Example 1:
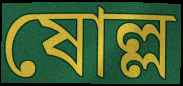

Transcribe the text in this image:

ষোল্ল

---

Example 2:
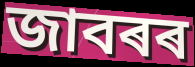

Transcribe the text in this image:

জাবৰৰ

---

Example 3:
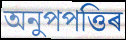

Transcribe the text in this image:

অনুপপত্তিৰ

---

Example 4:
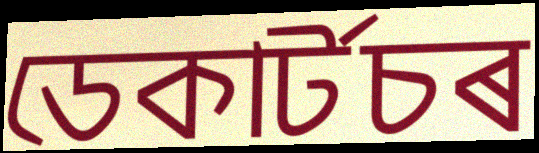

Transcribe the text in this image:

ডেকাৰ্টচৰ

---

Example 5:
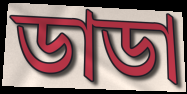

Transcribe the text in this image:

ডাডা